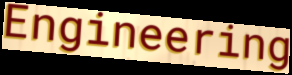
Engineering